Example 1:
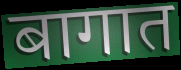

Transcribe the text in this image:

बागात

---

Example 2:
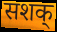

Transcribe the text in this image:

सशक्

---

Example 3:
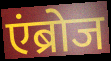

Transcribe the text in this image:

एंब्रोज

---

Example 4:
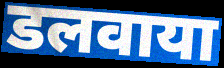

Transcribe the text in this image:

डलवाया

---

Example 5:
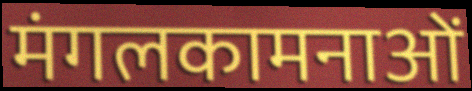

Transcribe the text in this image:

मंगलकामनाओं